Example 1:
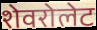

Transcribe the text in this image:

शेवरोलेट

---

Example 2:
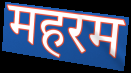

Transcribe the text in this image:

महरम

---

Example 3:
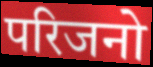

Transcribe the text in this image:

परिजनो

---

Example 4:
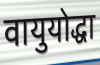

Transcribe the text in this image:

वायुयोद्धा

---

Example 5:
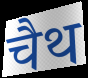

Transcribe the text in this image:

चैथ